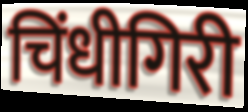
चिंधीगिरी